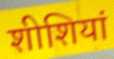
शीशियां